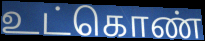
உட்கொண்